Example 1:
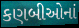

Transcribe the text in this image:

કણબીઓનાં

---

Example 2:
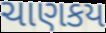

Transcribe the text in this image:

ચાણકય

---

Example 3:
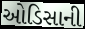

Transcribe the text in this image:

ઓડિસાની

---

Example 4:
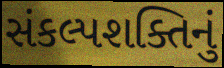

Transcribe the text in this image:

સંકલ્પશક્તિનું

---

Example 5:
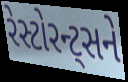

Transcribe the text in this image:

રેસ્ટોરન્ટ્સને